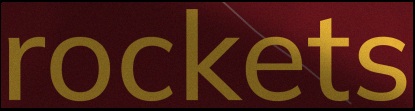
rockets